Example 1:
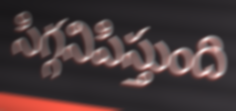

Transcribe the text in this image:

సిగ్గనిపిస్తుంది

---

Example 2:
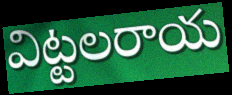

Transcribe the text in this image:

విట్టలరాయ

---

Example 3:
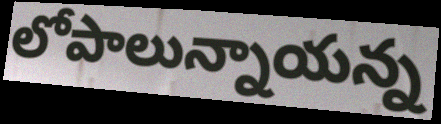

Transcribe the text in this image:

లోపాలున్నాయన్న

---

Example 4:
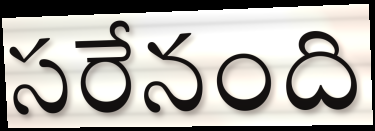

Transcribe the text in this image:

సరేనంది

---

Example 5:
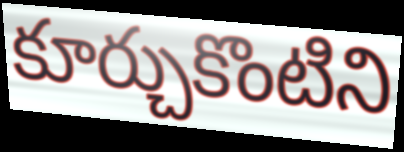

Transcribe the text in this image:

కూర్చుకొంటిని